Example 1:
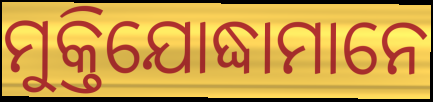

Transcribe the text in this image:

ମୁକ୍ତିଯୋଦ୍ଧାମାନେ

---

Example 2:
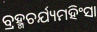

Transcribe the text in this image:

ବ୍ରହ୍ମଚର୍ଯ୍ୟମହିଂସା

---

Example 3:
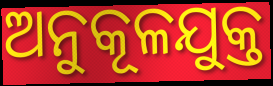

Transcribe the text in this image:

ଅନୁକୂଳଯୁକ୍ତ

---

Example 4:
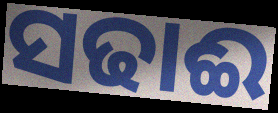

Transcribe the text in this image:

ସଢାଈ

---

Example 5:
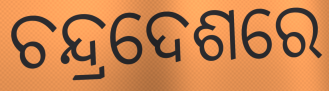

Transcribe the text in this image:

ଚନ୍ଦ୍ରଦେଶରେ